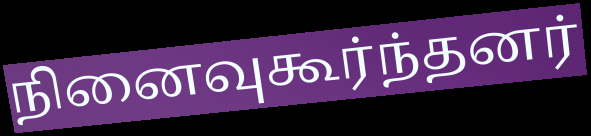
நினைவுகூர்ந்தனர்